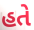
હતે